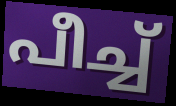
പീച്ച്